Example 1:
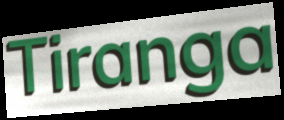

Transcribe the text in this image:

Tiranga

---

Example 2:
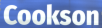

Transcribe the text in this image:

Cookson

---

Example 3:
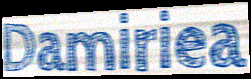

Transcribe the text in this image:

Damiriea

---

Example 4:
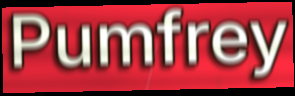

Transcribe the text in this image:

Pumfrey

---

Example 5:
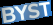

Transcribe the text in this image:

BYST